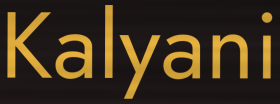
Kalyani